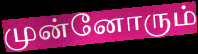
முன்னோரும்